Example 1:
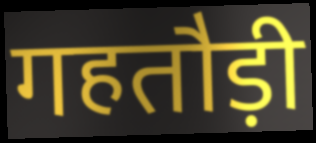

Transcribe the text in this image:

गहतौड़ी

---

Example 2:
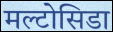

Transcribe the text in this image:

मल्टोसिडा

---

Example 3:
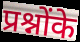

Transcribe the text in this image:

प्रश्नोंके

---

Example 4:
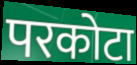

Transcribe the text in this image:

परकोटा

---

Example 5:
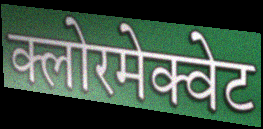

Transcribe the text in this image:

क्लोरमेक्वेट